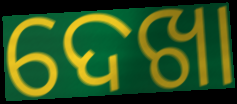
ଦେଖା